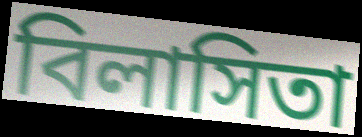
বিলাসিতা